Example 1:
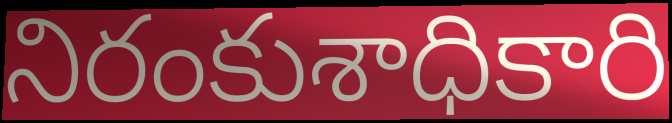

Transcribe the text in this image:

నిరంకుశాధికారి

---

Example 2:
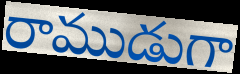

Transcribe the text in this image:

రాముడుగా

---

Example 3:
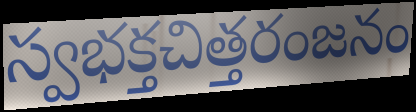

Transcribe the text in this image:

స్వభక్తచిత్తరంజనం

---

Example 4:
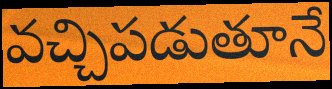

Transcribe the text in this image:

వచ్చిపడుతూనే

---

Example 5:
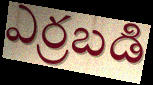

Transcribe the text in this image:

ఎర్రబడి